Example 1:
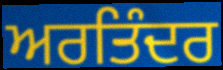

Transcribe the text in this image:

ਅਰਤਿੰਦਰ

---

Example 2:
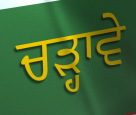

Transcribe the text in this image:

ਚੜ੍ਹਾਵੇ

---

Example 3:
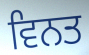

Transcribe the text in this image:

ਵਿਨਤ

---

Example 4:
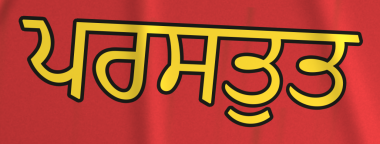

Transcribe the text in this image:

ਪਰਸਤੁਤ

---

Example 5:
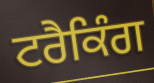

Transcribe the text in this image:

ਟਰੈਕਿੰਗ